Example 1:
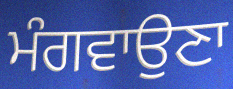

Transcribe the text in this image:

ਮੰਗਵਾਉਣਾ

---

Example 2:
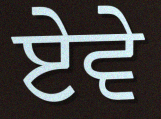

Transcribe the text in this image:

ਏਵੇ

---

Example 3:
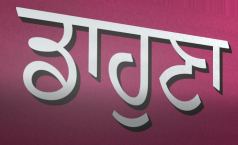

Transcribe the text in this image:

ਡਾਹੁਣਾ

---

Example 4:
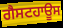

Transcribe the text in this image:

ਗੈਸਟਹਾਊਸ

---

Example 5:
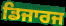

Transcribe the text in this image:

ਡਿਜਾਰਜ